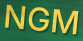
NGM